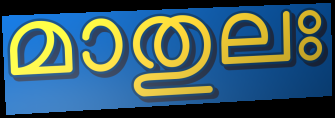
മാതുലഃ